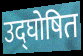
उद्घोषित